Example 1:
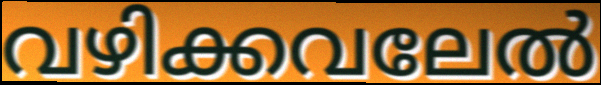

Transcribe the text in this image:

വഴിക്കവലേൽ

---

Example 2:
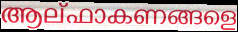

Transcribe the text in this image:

ആല്ഫാകണങ്ങളെ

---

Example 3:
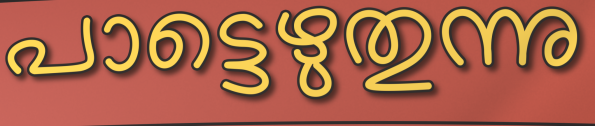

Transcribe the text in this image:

പാട്ടെഴുതുന്നു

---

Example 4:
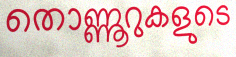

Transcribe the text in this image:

തൊണ്ണൂറുകളുടെ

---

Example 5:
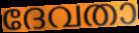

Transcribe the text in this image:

ദേവതാ